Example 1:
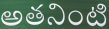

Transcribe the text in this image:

అతనింటి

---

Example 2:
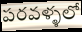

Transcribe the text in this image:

పరవళ్ళలో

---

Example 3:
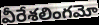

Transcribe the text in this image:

వీరేశలింగమో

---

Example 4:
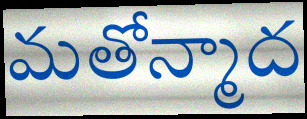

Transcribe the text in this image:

మతోన్మాద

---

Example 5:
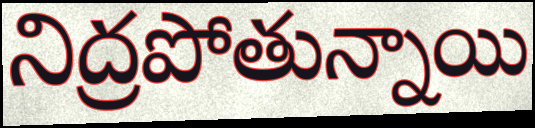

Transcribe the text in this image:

నిద్రపోతున్నాయి